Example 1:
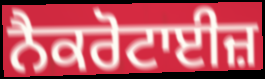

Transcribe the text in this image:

ਨੈਕਰੋਟਾਈਜ਼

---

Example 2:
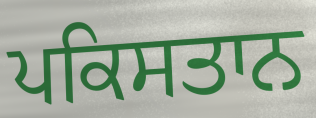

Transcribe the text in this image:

ਪਕਿਸਤਾਨ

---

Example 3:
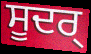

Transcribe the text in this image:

ਸੂਦਰ੍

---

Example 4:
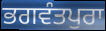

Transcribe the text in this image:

ਭਗਵੰਤਪੁਰਾ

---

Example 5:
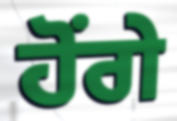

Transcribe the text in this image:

ਹੋਂਗੇ